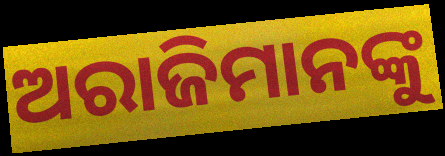
ଅରାଜିମାନଙ୍କୁ